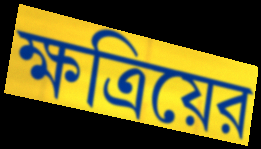
ক্ষত্রিয়ের